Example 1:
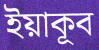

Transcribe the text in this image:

ইয়াকূব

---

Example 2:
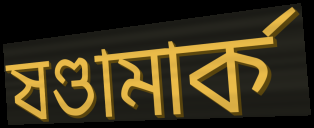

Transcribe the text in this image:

ষণ্ডামার্ক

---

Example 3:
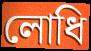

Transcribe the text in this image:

লোধি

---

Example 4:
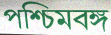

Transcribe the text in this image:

পশ্চিমবঙ্গ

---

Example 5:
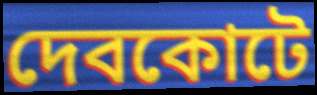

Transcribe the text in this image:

দেবকোটে